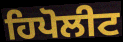
ਹਿਪੋਲੀਟ